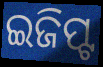
ଇଜିପ୍ଟ